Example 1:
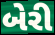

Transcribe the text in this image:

બેરી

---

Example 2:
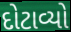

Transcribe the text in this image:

દોટાવ્યો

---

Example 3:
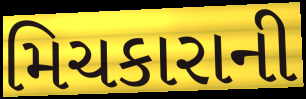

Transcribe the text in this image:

મિચકારાની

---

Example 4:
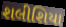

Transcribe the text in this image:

શલીશિયા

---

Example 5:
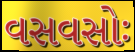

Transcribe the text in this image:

વસવસોઃ